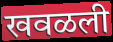
खवळली